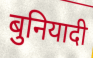
बुनियादी